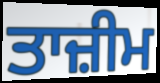
ਤਾਜ਼ੀਮ